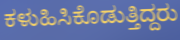
ಕಳುಹಿಸಿಕೊಡುತ್ತಿದ್ದರು